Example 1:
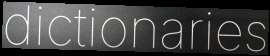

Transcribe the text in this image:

dictionaries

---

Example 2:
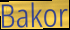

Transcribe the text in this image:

Bakor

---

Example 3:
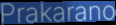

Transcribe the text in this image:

Prakarano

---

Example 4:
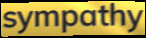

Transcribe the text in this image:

sympathy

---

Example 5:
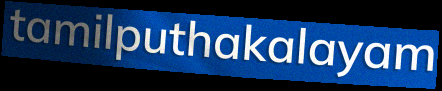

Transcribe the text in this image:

tamilputhakalayam